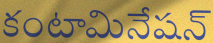
కంటామినేషన్